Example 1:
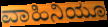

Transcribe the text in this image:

ವಾಹಿನಿಯೂ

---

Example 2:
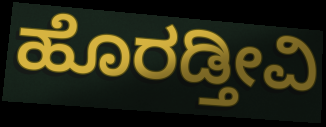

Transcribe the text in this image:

ಹೊರಡ್ತೀವಿ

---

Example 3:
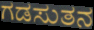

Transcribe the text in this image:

ಗಡಸುತನ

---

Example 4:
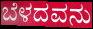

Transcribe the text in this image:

ಬೆಳದವನು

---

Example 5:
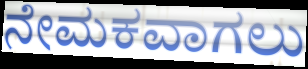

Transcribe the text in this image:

ನೇಮಕವಾಗಲು